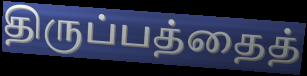
திருப்பத்தைத்